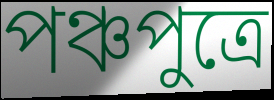
পঞ্চপুত্রে